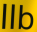
llb